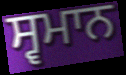
ਸ੍ਵਮਾਨ